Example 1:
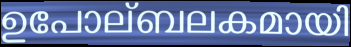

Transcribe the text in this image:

ഉപോല്ബലകമായി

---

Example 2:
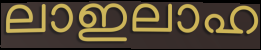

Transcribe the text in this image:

ലാഇലാഹ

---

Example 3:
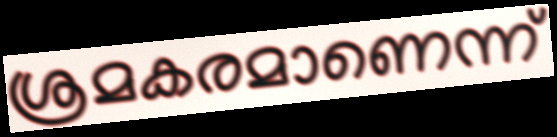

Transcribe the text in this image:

ശ്രമകരമാണെന്ന്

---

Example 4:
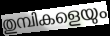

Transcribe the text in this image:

തുമ്പികളെയും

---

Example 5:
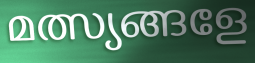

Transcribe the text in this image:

മത്സ്യങ്ങളേ